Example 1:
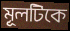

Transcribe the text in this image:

মূলটিকে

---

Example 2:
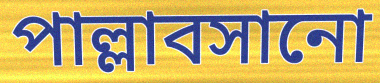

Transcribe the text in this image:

পাল্লাবসানো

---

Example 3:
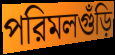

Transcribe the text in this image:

পরিমলগুঁড়ি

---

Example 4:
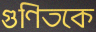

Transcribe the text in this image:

গুণিতকে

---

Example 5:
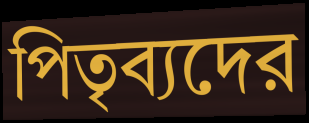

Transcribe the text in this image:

পিতৃব্যদের